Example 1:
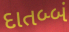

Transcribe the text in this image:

દાતબ્બં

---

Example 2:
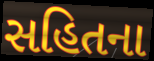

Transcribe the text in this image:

સહિતના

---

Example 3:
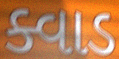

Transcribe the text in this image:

ક્વાડ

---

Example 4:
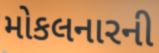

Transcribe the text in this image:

મોકલનારની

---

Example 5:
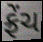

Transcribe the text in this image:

ફ્રેંચ